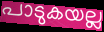
പാടുകയല്ല